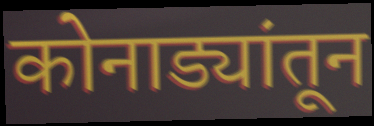
कोनाड्यांतून